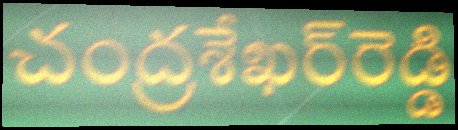
చంద్రశేఖర్‌రెడ్డి